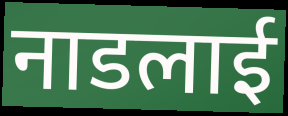
नाडलाई